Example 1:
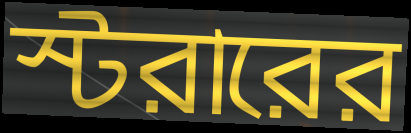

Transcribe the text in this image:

স্টরারের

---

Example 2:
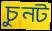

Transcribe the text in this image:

চুনট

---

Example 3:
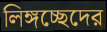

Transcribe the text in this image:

লিঙ্গচ্ছেদের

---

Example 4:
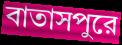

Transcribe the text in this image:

বাতাসপুরে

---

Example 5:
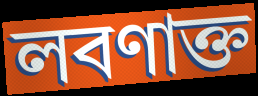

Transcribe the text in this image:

লবণাক্ত